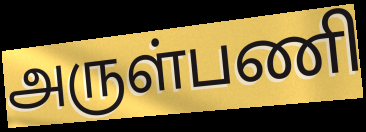
அருள்பணி